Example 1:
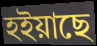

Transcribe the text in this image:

হইয়াছে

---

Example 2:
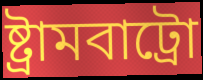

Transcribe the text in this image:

ষ্ট্ৰামবাট্ৰো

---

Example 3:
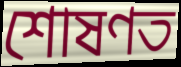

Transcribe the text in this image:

শোষণত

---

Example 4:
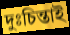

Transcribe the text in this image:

দুঃচিন্তাই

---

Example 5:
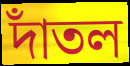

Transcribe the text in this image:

দাঁতল